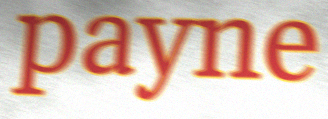
payne